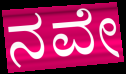
ನವೇ